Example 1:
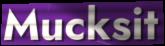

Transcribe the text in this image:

Mucksit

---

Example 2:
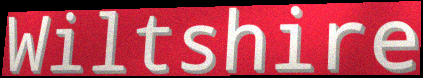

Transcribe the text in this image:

Wiltshire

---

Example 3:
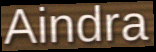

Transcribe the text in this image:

Aindra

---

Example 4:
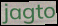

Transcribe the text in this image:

jagto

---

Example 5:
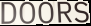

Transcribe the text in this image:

DOORS